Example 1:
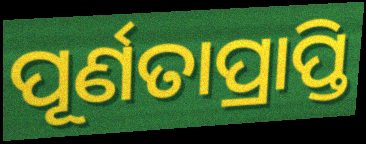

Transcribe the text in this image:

ପୂର୍ଣତାପ୍ରାପ୍ତି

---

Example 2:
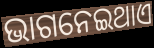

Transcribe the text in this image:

ଭାଗନେଇଥାଏ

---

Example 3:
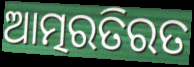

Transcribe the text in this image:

ଆତ୍ମରତିରତ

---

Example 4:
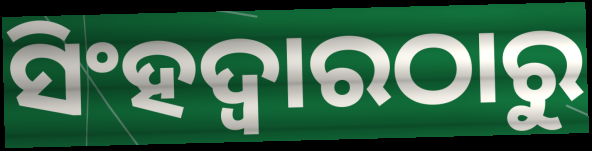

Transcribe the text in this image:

ସିଂହଦ୍ୱାରଠାରୁ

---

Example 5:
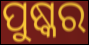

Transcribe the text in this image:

ପୁଷ୍କର